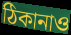
ঠিকানাও